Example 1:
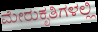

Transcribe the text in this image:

ಮೇರುಕೃತಿಗಳಲ್ಲಿ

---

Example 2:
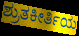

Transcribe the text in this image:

ಶ್ರುತಕೀರ್ತಿಯ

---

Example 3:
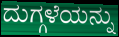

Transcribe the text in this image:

ದುಗ್ಗಳೆಯನ್ನು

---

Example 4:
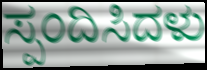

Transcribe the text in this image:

ಸ್ಪಂದಿಸಿದಳು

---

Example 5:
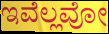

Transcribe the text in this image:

ಇವೆಲ್ಲವೋ